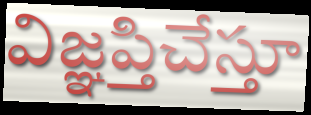
విజ్ఞప్తిచేస్తూ